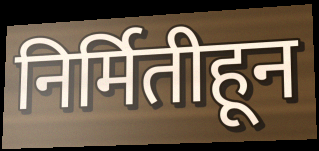
निर्मितीहून